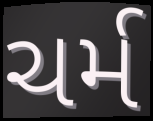
ચર્મ